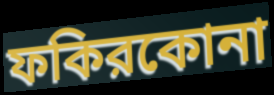
ফকিরকোনা